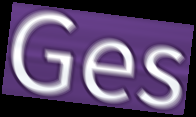
Ges